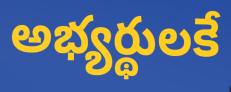
అభ్యర్థులకే